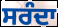
ਸਰੰਦਾ